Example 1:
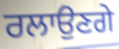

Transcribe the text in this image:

ਰਲਾਉਣਗੇ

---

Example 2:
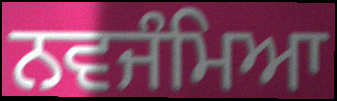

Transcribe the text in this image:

ਨਵਜੰਮਿਆ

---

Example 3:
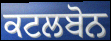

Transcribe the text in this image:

ਕਟਲਬੋਨ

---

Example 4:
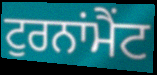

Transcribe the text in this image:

ਟੁਰਨਾਂਮੈਂਟ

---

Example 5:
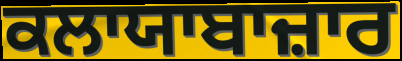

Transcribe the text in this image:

ਕਲਾਯਾਬਾਜ਼ਾਰ